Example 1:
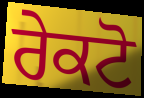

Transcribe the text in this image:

ਰੇਕਟੋ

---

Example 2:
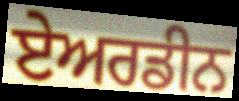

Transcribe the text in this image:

ਏਅਰਡੀਨ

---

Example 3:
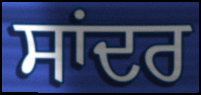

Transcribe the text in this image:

ਸਾਂਦਰ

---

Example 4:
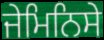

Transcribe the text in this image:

ਜੇਮਿਨਿਸੇ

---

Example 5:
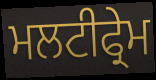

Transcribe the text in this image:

ਮਲਟੀਫ੍ਰੇਮ